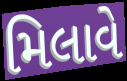
મિલાવે